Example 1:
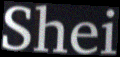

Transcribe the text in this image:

Shei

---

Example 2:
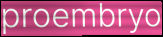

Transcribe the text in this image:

proembryo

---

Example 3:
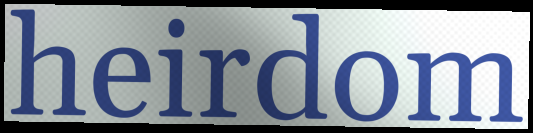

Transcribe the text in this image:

heirdom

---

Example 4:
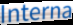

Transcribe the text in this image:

Interna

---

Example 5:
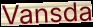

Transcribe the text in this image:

Vansda